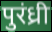
पुरंध्री